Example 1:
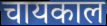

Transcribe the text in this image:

चायकाल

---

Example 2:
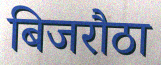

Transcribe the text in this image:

बिजरौठा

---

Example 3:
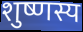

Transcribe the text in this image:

शुष्णस्य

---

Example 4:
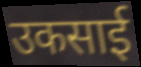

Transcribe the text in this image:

उकसाई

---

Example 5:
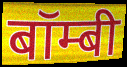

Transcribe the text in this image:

बॉम्बी